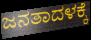
ಜನತಾದಳಕ್ಕೆ